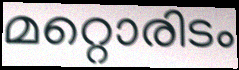
മറ്റൊരിടം